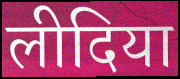
लीदिया